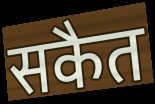
सकैत